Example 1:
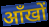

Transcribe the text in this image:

ऑंखों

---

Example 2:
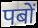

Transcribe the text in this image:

पबों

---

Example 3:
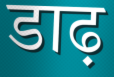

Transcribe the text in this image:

डाढ़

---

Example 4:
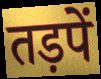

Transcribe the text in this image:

तड़पें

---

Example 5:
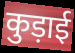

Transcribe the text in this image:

कुड़ाई